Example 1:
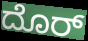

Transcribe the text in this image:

ದೊರ್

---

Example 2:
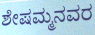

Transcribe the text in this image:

ಶೇಷಮ್ಮನವರ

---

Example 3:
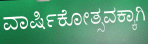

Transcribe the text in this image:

ವಾರ್ಷಿಕೋತ್ಸವಕ್ಕಾಗಿ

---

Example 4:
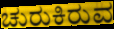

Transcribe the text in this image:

ಚುರುಕಿರುವ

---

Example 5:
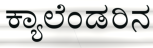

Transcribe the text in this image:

ಕ್ಯಾಲೆಂಡರಿನ